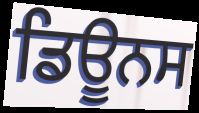
ਡਿਊਨਸ